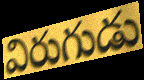
విరుగుడు